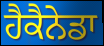
ਹੈਕੈਨੇਡਾ